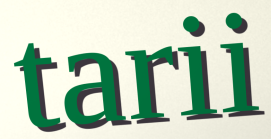
tarii